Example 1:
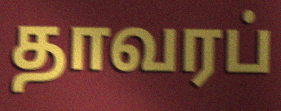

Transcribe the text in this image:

தாவரப்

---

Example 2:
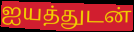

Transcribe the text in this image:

ஐயத்துடன்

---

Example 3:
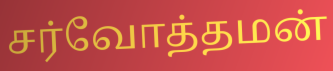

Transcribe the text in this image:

சர்வோத்தமன்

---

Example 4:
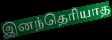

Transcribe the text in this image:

இனந்தெரியாத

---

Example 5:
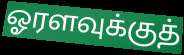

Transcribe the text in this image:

ஓரளவுக்குத்